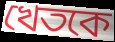
খেতকে